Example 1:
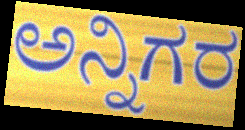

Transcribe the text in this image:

ಅನ್ನಿಗರ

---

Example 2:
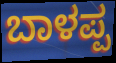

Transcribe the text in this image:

ಬಾಳಪ್ಪ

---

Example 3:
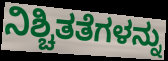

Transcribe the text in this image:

ನಿಶ್ಚಿತತೆಗಳನ್ನು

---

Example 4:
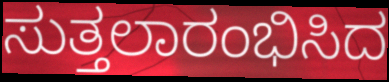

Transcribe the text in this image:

ಸುತ್ತಲಾರಂಭಿಸಿದ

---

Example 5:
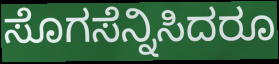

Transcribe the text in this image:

ಸೊಗಸೆನ್ನಿಸಿದರೂ